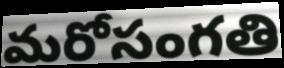
మరోసంగతి